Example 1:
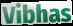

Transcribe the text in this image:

Vibhas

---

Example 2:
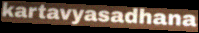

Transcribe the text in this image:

kartavyasadhana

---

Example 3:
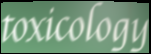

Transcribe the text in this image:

toxicology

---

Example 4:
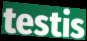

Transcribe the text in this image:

testis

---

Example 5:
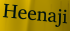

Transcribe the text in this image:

Heenaji